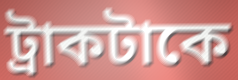
ট্রাকটাকে